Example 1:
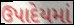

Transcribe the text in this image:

ઉપાદેયમાં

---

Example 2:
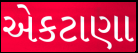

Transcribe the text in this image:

એકટાણા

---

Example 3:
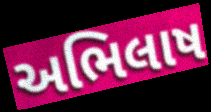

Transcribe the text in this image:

અભિલાષ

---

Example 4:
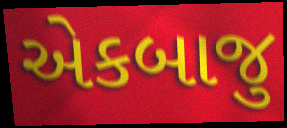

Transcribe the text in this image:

એકબાજુ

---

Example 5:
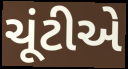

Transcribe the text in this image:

ચૂંટીએ